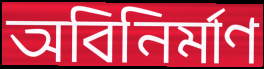
অবিনির্মাণ